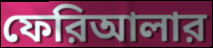
ফেরিআলার